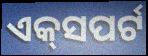
ଏକ୍‌ସପର୍ଟ